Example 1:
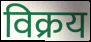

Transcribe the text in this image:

विक्रय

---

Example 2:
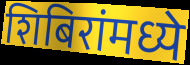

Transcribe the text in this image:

शिबिरांमध्ये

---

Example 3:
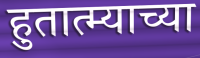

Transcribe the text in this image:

हुतात्म्याच्या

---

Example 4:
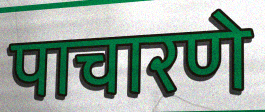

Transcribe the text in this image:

पाचारणे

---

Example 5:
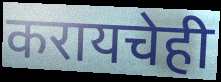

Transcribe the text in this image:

करायचेही